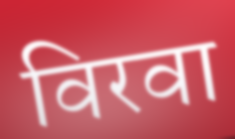
विरवा